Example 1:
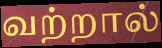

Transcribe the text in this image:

வற்றால்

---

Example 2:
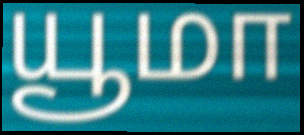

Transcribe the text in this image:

யூமா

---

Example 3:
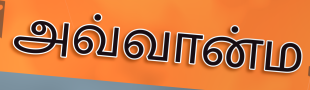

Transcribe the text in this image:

அவ்வான்ம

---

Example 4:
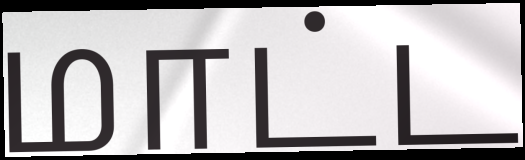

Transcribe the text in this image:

மாட்ட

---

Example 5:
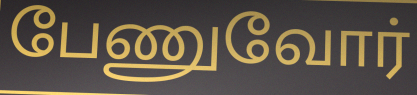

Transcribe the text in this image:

பேணுவோர்